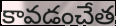
కావడంచేత